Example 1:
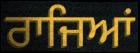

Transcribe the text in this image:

ਰਾਜਿਆਂ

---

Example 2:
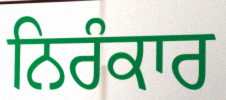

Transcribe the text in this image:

ਨਿਰੰਕਾਰ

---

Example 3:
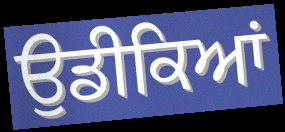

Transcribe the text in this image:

ਉਡੀਕਿਆਂ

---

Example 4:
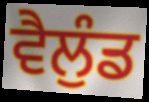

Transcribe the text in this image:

ਵੈਲੁੰਡ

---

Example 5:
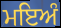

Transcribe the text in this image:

ਮਇਅੰ